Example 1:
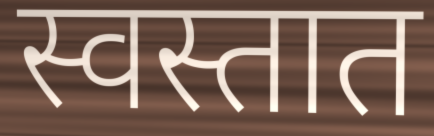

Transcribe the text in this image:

स्वस्तात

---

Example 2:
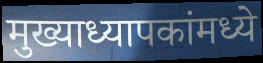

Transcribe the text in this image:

मुख्याध्यापकांमध्ये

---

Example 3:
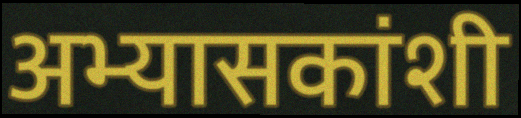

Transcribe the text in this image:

अभ्यासकांशी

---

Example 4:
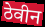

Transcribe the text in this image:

ठेवीन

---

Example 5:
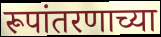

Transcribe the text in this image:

रूपांतरणाच्या